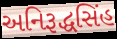
અનિરૂદ્ધસિંહ